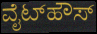
ವೈಟ್‌ಹೌಸ್